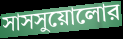
সাসসুয়োলোর